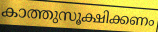
കാത്തുസൂക്ഷിക്കണം